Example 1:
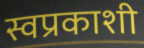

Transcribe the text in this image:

स्वप्रकाशी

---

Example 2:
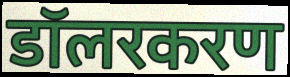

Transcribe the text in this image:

डॉलरकरण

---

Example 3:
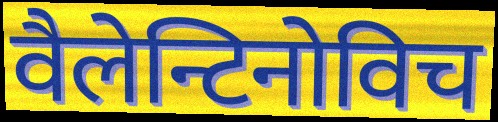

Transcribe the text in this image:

वैलेन्टिनोविच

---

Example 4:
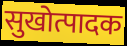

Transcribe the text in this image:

सुखोत्पादक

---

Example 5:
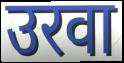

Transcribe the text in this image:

उरवा